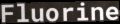
Fluorine